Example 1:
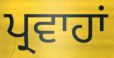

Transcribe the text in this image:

ਪ੍ਰਵਾਹਾਂ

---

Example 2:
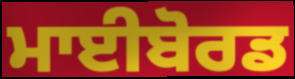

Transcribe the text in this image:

ਮਾਈਬੋਰਡ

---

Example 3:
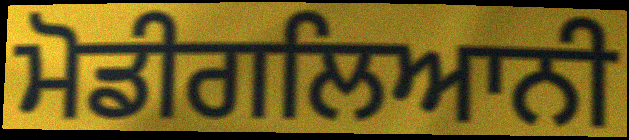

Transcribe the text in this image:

ਮੋਡੀਗਲਿਆਨੀ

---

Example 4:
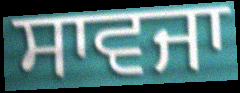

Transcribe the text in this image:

ਸਾਵਜਾ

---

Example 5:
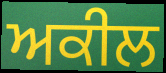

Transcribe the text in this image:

ਅਕੀਲ